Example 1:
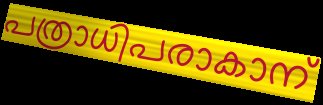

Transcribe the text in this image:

പത്രാധിപരാകാന്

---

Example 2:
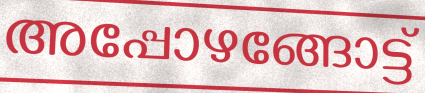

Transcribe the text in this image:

അപ്പോഴങ്ങോട്ട്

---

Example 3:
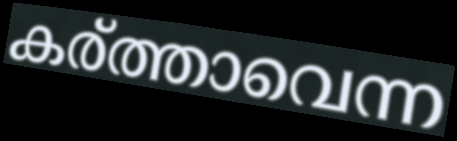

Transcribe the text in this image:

കര്ത്താവെന്ന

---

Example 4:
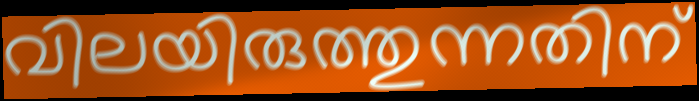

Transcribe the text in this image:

വിലയിരുത്തുന്നതിന്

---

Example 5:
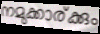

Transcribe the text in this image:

നമുക്കാര്ക്കും